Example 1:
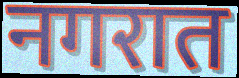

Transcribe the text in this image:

नगरात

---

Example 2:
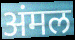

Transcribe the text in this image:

अंमल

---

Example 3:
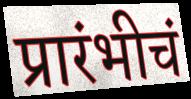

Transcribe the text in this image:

प्रारंभीचं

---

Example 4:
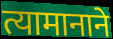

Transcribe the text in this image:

त्यामानाने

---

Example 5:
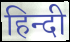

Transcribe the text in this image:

हिन्दी